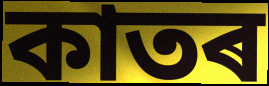
কাতৰ